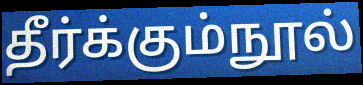
தீர்க்கும்நூல்